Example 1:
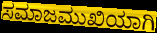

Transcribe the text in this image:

ಸಮಾಜಮುಖಿಯಾಗಿ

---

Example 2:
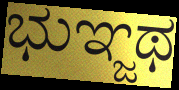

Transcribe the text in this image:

ಭುಞ್ಜಥ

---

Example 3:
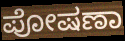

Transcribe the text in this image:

ಪೋಷಣಾ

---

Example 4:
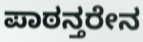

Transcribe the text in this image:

ಪಾಠನ್ತರೇನ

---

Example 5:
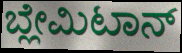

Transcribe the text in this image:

ಬ್ಲೇಮಿಟಾನ್